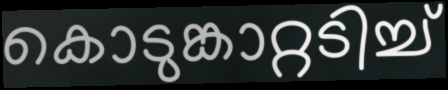
കൊടുങ്കാറ്റടിച്ച്